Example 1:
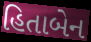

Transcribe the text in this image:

હિતાબેન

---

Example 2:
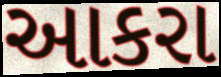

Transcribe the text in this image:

આકરા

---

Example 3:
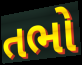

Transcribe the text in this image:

તભો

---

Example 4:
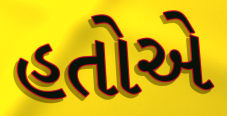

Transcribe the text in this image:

હતોએ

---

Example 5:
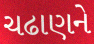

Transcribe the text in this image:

ચઢાણને